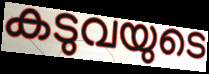
കടുവയുടെ